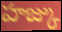
హజ్కు